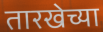
तारखेच्या